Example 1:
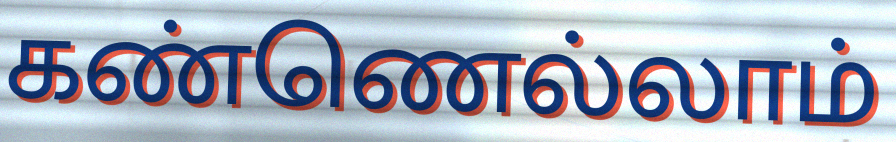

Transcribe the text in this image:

கண்ணெல்லாம்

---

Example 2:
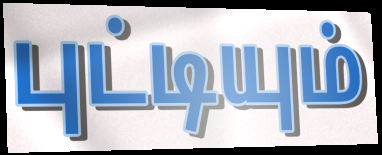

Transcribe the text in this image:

புட்டியும்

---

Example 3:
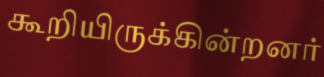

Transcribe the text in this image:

கூறியிருக்கின்றனர்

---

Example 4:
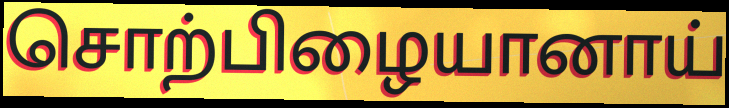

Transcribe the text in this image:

சொற்பிழையானாய்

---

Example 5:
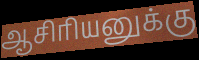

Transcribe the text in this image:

ஆசிரியனுக்கு